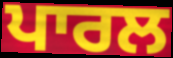
ਪਾਰਲ